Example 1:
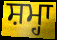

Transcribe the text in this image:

ਸ਼ਮ੍ਹਾ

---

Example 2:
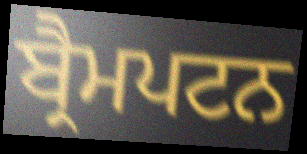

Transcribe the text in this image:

ਬ੍ਰੈਮਪਟਨ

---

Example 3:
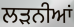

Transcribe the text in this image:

ਲੜਨੀਆਂ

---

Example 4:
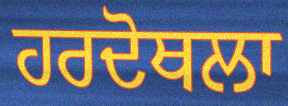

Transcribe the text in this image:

ਹਰਦੋਥਲਾ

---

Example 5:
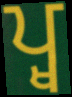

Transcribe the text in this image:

ਪ੍ਥ